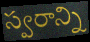
స్వరాన్ని